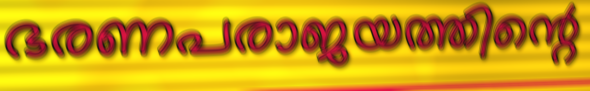
ഭരണപരാജയത്തിന്റെ